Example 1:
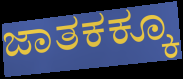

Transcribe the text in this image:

ಜಾತಕಕ್ಕೂ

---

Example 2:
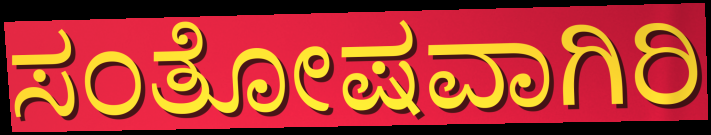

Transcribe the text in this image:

ಸಂತೋಷವಾಗಿರಿ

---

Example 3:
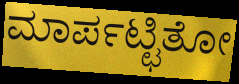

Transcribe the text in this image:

ಮಾರ್ಪಟ್ಟಿತೋ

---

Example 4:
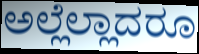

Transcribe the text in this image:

ಅಲ್ಲೆಲ್ಲಾದರೂ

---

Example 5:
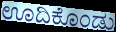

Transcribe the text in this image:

ಊದಿಕೊಂಡು